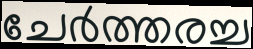
ചേർത്തരച്ച